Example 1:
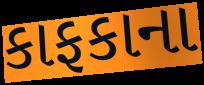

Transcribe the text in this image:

કાફકાના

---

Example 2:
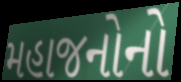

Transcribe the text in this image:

મહાજનોનો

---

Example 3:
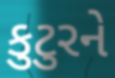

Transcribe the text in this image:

કુટુરને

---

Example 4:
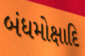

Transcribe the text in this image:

બંધમોક્ષાદિ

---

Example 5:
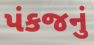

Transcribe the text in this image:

પંકજનું